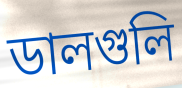
ডালগুলি